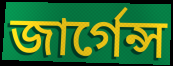
জার্গেন্স